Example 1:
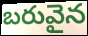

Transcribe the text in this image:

బరువైన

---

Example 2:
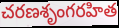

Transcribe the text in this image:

చరణశృంగరహిత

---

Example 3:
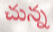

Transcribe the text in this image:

చున్న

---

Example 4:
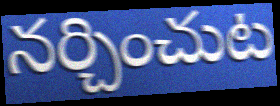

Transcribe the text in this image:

నర్చించుట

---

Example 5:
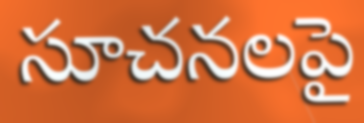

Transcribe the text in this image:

సూచనలపై